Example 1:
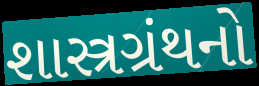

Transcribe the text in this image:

શાસ્ત્રગ્રંથનો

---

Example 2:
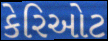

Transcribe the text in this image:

કેરિઓટ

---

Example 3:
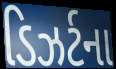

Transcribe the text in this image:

ડિઝર્ટના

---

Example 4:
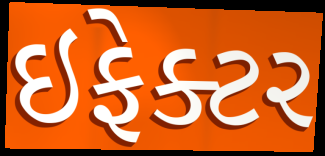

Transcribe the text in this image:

ઇફેક્ટર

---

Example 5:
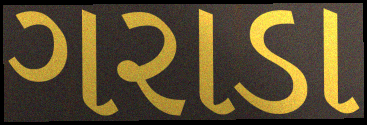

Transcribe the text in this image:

ગરાડા